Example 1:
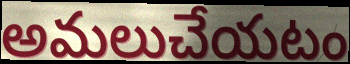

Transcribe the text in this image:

అమలుచేయటం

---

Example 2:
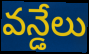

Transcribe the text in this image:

వన్డేలు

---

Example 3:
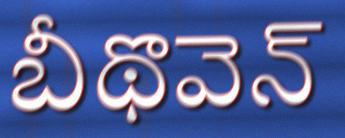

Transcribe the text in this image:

బీథొవెన్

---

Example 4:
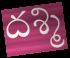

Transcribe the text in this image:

దశ్మి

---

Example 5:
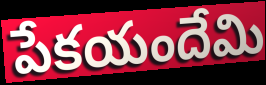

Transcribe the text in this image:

పేకయందేమి